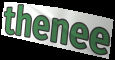
thenee